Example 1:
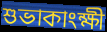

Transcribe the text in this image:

শুভাকাংক্ষী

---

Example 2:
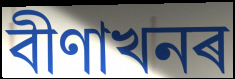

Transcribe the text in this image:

বীণাখনৰ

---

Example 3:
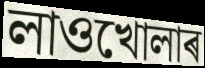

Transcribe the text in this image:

লাওখোলাৰ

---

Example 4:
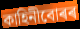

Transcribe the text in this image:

কাহিনীবোৰৰ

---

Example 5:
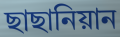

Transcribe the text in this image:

ছাছানিয়ান